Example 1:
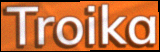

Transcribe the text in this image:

Troika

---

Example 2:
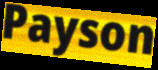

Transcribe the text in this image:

Payson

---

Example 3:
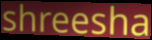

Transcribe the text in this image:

shreesha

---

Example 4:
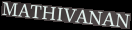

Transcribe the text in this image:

MATHIVANAN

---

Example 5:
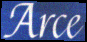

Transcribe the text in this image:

Arce